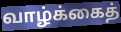
வாழ்க்கைத்